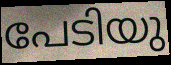
പേടിയു